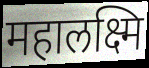
महालक्ष्मि